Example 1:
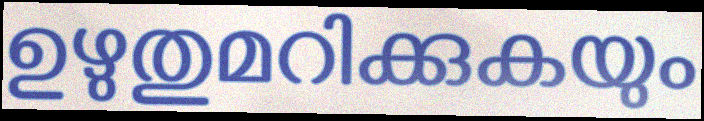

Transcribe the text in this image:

ഉഴുതുമറിക്കുകയും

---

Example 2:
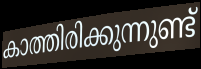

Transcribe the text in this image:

കാത്തിരിക്കുന്നുണ്ട്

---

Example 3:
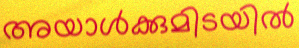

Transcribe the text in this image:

അയാൾക്കുമിടയിൽ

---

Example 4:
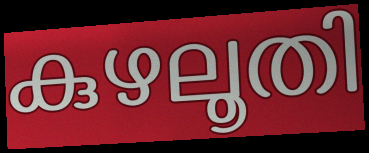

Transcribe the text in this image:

കുഴലൂതി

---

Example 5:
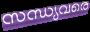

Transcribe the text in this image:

സന്ധ്യവരെ